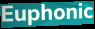
Euphonic